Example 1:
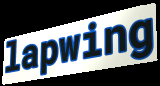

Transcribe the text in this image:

lapwing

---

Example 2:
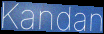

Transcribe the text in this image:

Kandan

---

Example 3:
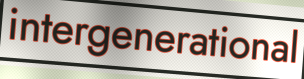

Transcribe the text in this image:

intergenerational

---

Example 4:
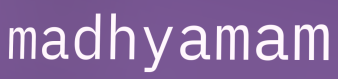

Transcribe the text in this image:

madhyamam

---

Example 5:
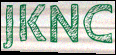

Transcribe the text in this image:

JKNC